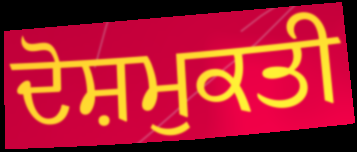
ਦੋਸ਼ਮੁਕਤੀ